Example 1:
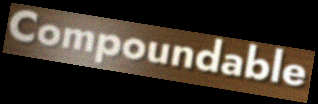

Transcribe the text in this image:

Compoundable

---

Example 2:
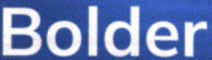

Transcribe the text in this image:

Bolder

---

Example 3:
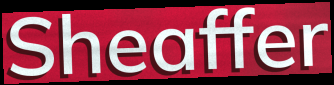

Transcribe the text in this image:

Sheaffer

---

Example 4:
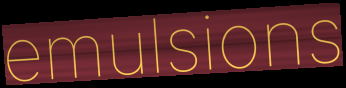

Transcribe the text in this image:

emulsions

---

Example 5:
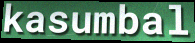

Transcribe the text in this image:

kasumbal